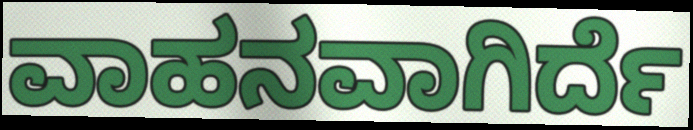
ವಾಹನವಾಗಿರ್ದೆ